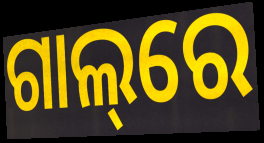
ଗାଲ୍‌ରେ